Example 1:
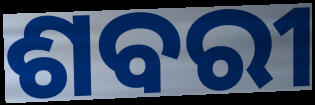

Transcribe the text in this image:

ଶବରୀ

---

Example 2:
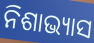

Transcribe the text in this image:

ନିଶାଭ୍ୟାସ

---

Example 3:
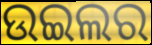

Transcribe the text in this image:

ଉଇଲର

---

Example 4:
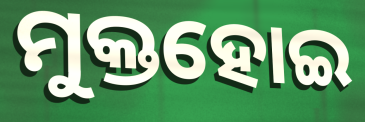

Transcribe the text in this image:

ମୁକ୍ତହୋଇ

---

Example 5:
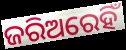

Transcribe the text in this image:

ଜରିଅରେହିଁ